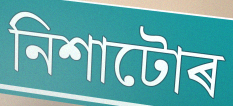
নিশাটোৰ